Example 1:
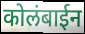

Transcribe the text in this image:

कोलंबाईन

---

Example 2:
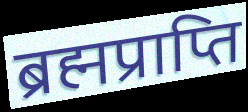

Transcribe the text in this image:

ब्रह्मप्राप्ति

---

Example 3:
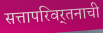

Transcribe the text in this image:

सत्तापरिवर्तनाची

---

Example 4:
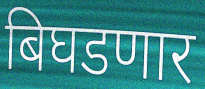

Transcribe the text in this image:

बिघडणार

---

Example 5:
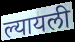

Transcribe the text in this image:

ल्यायली